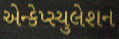
એન્કેપ્સ્યુલેશન